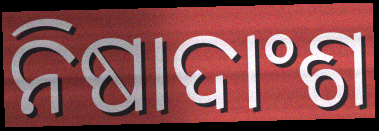
ନିଷାଦାଂଶ